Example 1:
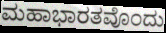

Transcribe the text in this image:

ಮಹಾಭಾರತವೊಂದು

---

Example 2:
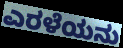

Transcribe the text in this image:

ಎರಳೆಯನು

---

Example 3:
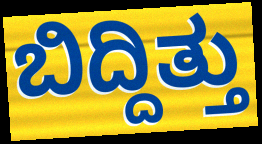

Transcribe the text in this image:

ಬಿದ್ದಿತ್ತು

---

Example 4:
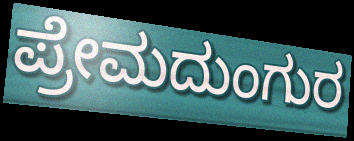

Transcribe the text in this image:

ಪ್ರೇಮದುಂಗುರ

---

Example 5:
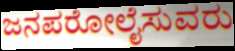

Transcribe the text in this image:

ಜನಪರೋಲೈಸುವರು